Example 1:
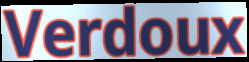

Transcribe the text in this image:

Verdoux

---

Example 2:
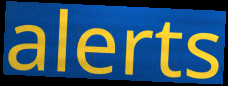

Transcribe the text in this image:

alerts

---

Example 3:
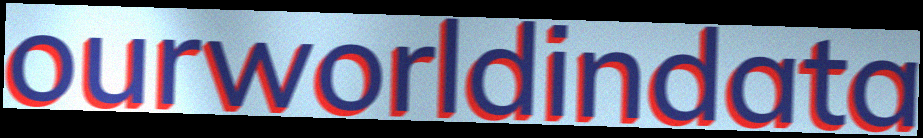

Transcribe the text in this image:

ourworldindata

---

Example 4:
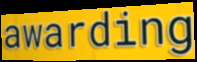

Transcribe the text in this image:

awarding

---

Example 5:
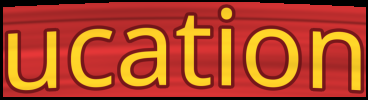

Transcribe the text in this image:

ucation